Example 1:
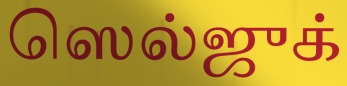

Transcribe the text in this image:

ஸெல்ஜுக்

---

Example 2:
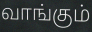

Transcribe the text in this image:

வாங்கும்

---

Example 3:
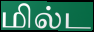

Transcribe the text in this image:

மில்ட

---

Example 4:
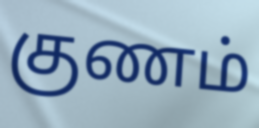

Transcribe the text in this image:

குணம்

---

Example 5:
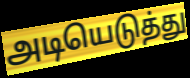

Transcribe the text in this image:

அடியெடுத்து